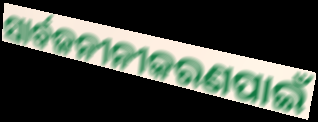
ସାର୍ବଜନୀନୀକରଣପାଇଁ